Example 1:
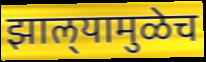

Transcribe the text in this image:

झाल्यामुळेच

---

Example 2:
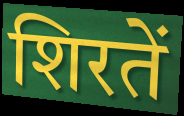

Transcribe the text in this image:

शिरतें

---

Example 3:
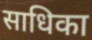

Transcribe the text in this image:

साधिका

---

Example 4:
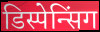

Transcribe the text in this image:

डिस्पेन्सिंग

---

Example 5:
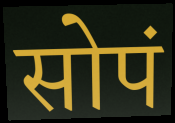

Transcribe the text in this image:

सोपं